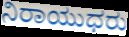
ನಿರಾಯುಧರು